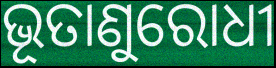
ଭୂତାଣୁରୋଧୀ